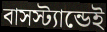
বাসস্ট্যান্ডেই